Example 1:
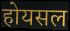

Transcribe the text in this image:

होयसल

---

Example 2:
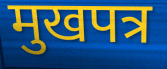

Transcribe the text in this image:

मुखपत्र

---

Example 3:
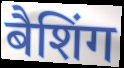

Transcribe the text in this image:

बैशिंग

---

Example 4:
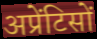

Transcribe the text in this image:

अप्रेंटिसों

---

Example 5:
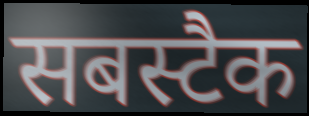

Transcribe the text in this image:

सबस्टैक